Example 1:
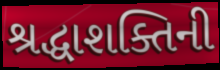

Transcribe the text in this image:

શ્રદ્ધાશક્તિની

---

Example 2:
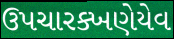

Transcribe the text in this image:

ઉપચારક્ખણેયેવ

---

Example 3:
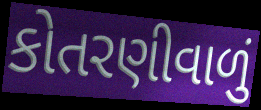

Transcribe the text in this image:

કોતરણીવાળું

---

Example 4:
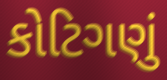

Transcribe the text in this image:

કોટિગણું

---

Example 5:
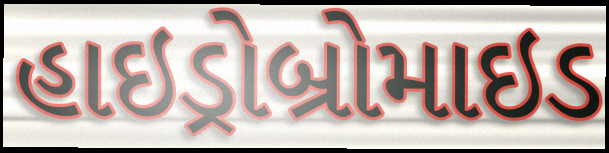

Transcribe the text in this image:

હાઇડ્રોબ્રોમાઇડ